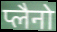
प्लैनो